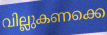
വില്ലുകണക്കെ